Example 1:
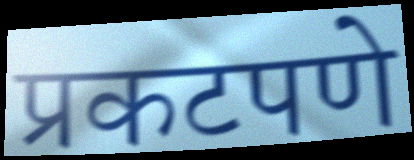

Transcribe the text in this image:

प्रकटपणे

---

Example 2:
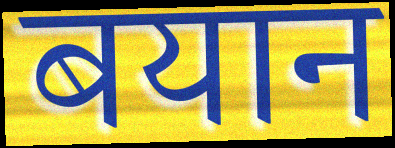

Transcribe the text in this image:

बयान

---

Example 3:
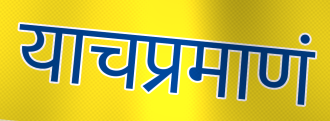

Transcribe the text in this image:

याचप्रमाणं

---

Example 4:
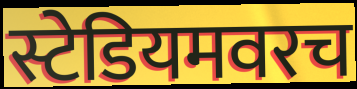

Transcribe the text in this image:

स्टेडियमवरच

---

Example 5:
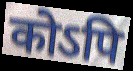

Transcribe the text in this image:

कोऽपि